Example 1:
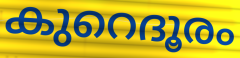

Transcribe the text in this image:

കുറെദൂരം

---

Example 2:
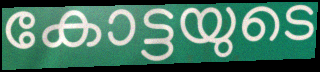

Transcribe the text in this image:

കോട്ടയുടെ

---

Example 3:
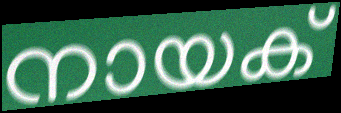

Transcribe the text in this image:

നായക്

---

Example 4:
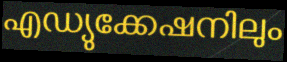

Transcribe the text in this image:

എഡ്യുക്കേഷനിലും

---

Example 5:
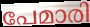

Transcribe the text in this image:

പേമാരി